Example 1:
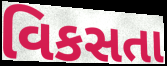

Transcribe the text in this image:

વિકસતા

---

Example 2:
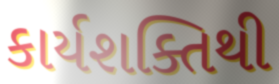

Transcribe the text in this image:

કાર્યશક્તિથી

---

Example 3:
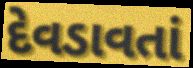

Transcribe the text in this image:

દેવડાવતાં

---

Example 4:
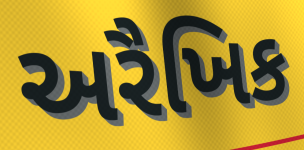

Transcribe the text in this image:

અરૈખિક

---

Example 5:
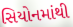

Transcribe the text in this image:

સિયોનમાંથી